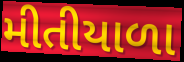
મીતીયાળા